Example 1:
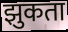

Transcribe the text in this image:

झुकता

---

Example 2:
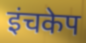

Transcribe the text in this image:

इंचकेप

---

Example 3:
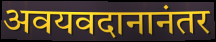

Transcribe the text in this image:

अवयवदानानंतर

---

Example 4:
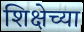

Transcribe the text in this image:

शिक्षेच्या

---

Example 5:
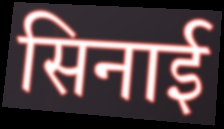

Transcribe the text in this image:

सिनाई